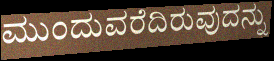
ಮುಂದುವರೆದಿರುವುದನ್ನು